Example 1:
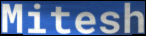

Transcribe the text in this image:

Mitesh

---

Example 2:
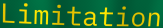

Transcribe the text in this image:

Limitation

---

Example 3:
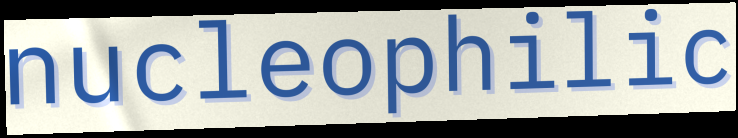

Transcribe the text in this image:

nucleophilic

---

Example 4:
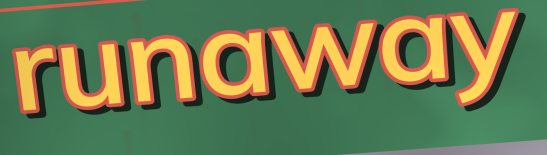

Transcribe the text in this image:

runaway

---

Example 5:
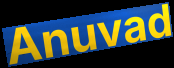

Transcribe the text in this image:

Anuvad